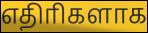
எதிரிகளாக